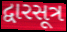
દ્વારસૂત્ર